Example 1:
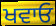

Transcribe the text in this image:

ਖਵਾਓ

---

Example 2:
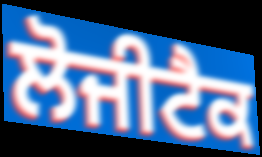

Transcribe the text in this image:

ਲੋਜੀਟੈਕ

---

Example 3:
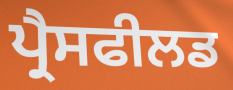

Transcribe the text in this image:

ਪ੍ਰੈਸਫੀਲਡ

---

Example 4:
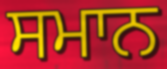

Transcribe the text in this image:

ਸਮਾਨ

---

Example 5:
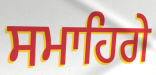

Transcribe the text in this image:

ਸਮਾਹਿਗੇ